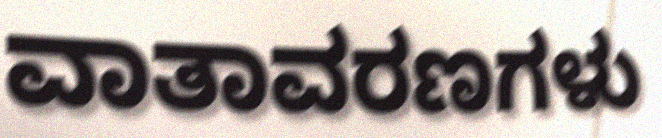
ವಾತಾವರಣಗಳು